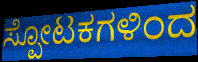
ಸ್ಪೋಟಕಗಳಿಂದ